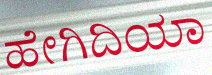
ಹೇಗಿದಿಯಾ